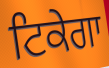
ਟਿਕੇਗਾ